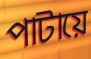
পাটায়ে